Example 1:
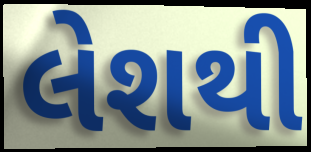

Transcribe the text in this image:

લેશથી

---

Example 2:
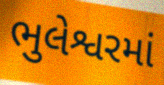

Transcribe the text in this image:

ભુલેશ્વરમાં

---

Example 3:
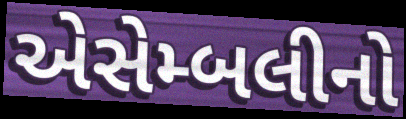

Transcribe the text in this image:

એસેમ્બલીનો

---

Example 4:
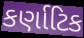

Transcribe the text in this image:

કર્ણાટિક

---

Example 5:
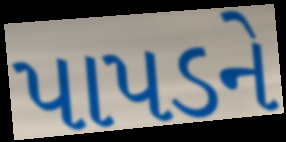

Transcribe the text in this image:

પાપડને